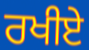
ਰਖੀਏ